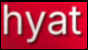
hyat